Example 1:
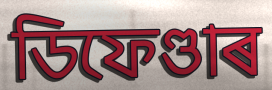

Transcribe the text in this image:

ডিফেণ্ডাৰ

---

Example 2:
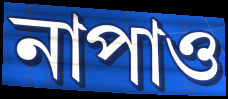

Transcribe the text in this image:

নাপাও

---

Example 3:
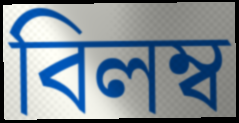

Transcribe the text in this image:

বিলম্ব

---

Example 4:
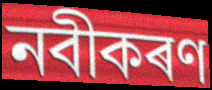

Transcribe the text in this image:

নবীকৰণ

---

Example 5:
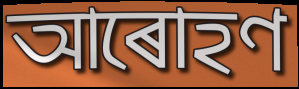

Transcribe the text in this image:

আৰোহণ